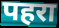
पहरा